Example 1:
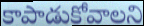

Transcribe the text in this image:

కాపాడుకోవాలని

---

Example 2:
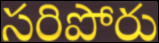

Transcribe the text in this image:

సరిపోరు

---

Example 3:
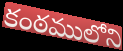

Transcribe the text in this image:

కంఠములోని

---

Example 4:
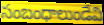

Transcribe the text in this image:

సంబంధాలుండేవి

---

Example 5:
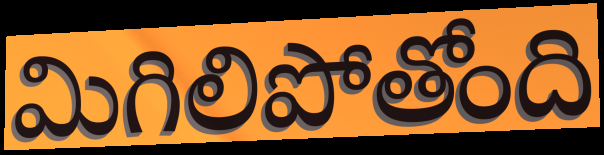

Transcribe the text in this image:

మిగిలిపోతోంది